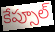
కేప్సూల్